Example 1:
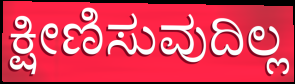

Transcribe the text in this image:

ಕ್ಷೀಣಿಸುವುದಿಲ್ಲ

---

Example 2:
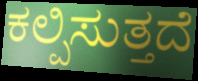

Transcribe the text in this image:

ಕಲ್ಪಿಸುತ್ತದೆ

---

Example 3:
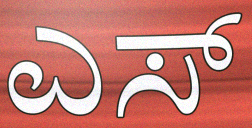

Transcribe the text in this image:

ಎಸ್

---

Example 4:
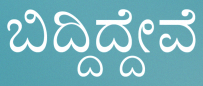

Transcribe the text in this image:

ಬಿದ್ದಿದ್ದೇವೆ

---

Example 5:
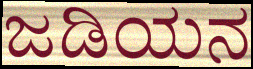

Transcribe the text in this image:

ಜಡಿಯನ